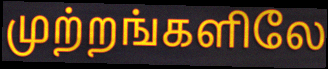
முற்றங்களிலே